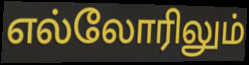
எல்லோரிலும்